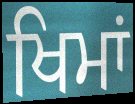
ਖਿਮਾਂ